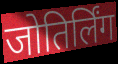
जोतिर्लिंग